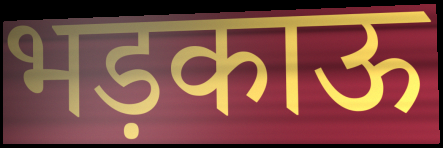
भड़काऊ